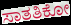
ಸಾತತಿಕೋ